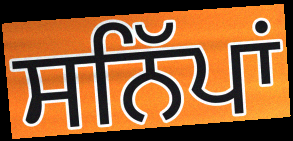
ਸਨਿੱਪਾਂ